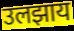
उलझाय